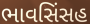
ભાવસિંસહ